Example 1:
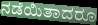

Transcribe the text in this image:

ನಡೆಯಿತಾದರೂ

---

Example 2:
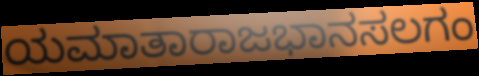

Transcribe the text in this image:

ಯಮಾತಾರಾಜಭಾನಸಲಗಂ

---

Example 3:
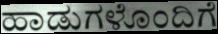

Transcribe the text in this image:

ಹಾಡುಗಳೊಂದಿಗೆ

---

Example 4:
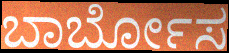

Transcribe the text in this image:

ಬಾರ್ಬೋಸ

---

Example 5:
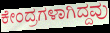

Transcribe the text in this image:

ಕೇಂದ್ರಗಳಾಗಿದ್ದವು